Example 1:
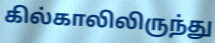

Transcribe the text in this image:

கில்காலிலிருந்து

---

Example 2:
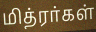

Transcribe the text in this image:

மித்ரர்கள்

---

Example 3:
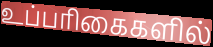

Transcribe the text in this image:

உப்பரிகைகளில்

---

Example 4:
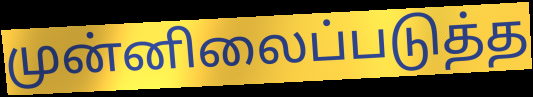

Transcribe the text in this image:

முன்னிலைப்படுத்த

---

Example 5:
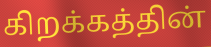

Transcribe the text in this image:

கிறக்கத்தின்